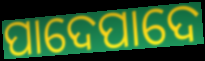
ପାଦେପାଦେ